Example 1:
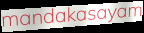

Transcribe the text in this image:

mandakasayam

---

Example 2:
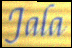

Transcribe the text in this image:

Jala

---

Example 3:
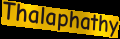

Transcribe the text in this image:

Thalaphathy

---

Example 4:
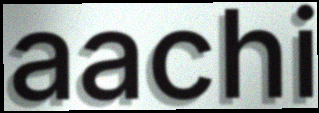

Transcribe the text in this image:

aachi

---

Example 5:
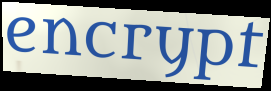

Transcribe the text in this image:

encrypt